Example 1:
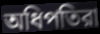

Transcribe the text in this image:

অধিপতিরা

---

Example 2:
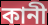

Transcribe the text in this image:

কানী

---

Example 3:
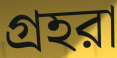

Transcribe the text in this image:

গ্রহরা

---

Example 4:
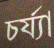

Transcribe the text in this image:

চর্য্যা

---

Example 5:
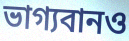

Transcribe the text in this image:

ভাগ্যবানও